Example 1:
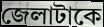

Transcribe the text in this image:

জেলাটাকে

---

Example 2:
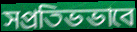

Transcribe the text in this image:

সপ্রতিভভাবে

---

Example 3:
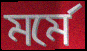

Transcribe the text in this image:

মর্মে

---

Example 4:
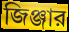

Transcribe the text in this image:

জিঞ্জার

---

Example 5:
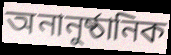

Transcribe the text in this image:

অনানুষ্ঠানিক